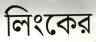
লিংকের